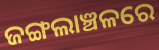
ଜଙ୍ଗଲାଞ୍ଚଳରେ